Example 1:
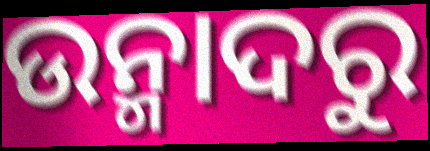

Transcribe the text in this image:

ଉନ୍ମାଦରୁ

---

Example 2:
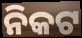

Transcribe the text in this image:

ନିକଟ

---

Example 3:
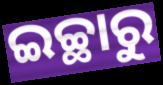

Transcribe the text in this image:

ଇଚ୍ଛାରୁ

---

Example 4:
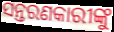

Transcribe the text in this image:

ସନ୍ତରଣକାରୀଙ୍କୁ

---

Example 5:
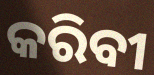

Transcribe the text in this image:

କରିବୀ